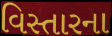
વિસ્તારના